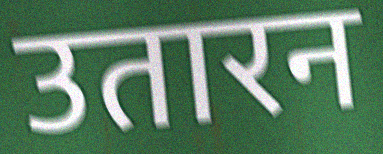
उतारन